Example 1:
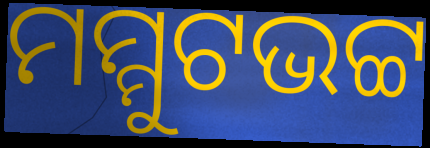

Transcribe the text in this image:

ମମ୍ମୁଟଭଟ୍ଟ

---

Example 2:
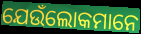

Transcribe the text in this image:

ଯେଉଁଲୋକମାନେ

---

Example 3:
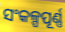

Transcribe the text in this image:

ସଂକଳ୍ପପୂର୍ଣ୍ଣ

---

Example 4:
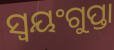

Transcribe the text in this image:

ସ୍ୱୟଂଗୁପ୍ତା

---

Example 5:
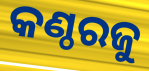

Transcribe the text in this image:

କଣ୍ଠରଜୁ